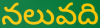
నలువది